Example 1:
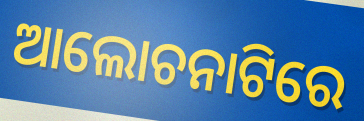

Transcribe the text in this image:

ଆଲୋଚନାଟିରେ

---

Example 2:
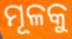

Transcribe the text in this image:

ମୂଳକୁ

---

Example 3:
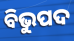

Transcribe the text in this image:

ବିଭୁପଦ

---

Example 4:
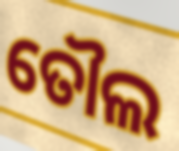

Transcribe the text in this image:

ତୌଲ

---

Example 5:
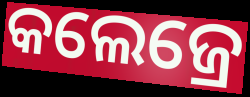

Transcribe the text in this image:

କଲେଜ୍ରେ